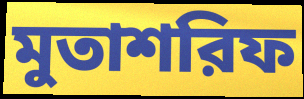
মুতাশরিফ